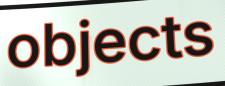
objects